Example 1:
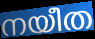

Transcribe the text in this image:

നയീത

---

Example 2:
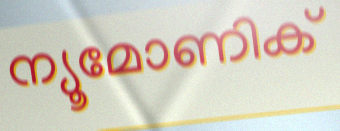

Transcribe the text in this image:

ന്യൂമോണിക്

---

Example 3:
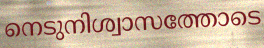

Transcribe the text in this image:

നെടുനിശ്വാസത്തോടെ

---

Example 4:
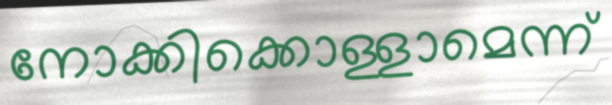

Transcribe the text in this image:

നോക്കിക്കൊള്ളാമെന്ന്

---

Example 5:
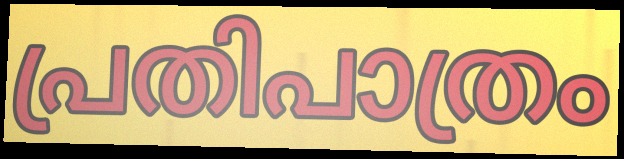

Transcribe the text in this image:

പ്രതിപാത്രം